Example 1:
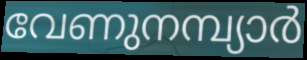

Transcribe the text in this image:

വേണുനമ്പ്യാർ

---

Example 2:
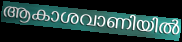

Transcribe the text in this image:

ആകാശവാണിയിൽ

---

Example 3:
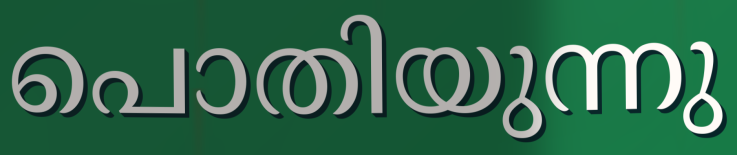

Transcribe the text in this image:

പൊതിയുന്നു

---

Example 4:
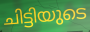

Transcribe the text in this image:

ചിട്ടിയുടെ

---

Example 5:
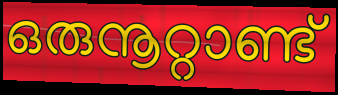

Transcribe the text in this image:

ഒരുനൂറ്റാണ്ട്